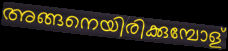
അങ്ങനെയിരിക്കുമ്പോള്